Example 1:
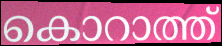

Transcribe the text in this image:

കൊറാത്ത്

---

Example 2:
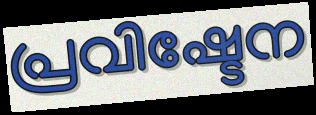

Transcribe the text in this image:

പ്രവിഷ്ടേന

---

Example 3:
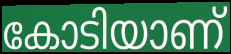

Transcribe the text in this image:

കോടിയാണ്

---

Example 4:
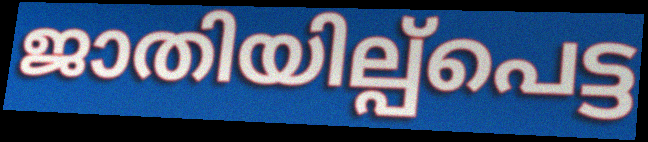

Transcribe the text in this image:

ജാതിയില്പ്പെട്ട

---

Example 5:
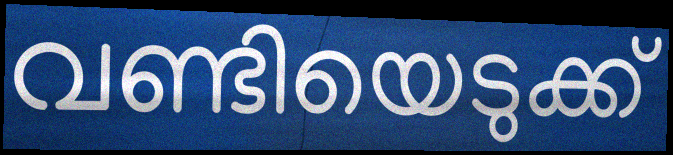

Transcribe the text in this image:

വണ്ടിയെടുക്ക്